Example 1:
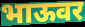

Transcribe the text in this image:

भाऊवर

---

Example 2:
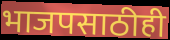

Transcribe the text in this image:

भाजपसाठीही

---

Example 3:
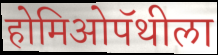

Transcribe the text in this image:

होमिओपॅथीला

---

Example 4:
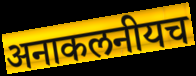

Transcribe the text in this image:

अनाकलनीयच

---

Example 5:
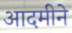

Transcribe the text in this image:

आदमीने